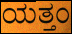
ಯತ್ತಂ